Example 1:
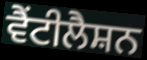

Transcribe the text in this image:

ਵੈਂਟੀਲੈਸ਼ਨ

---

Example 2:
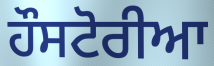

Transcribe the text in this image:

ਹੌਸਟੋਰੀਆ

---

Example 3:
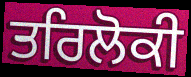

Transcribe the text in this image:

ਤਰਿਲੋਕੀ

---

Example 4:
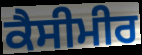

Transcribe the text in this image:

ਕੈਸੀਮੀਰ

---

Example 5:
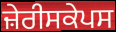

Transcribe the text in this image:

ਜ਼ੇਰੀਸਕੇਪਸ